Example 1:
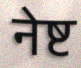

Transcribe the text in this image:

नेष्ट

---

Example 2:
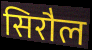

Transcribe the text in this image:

सिरौल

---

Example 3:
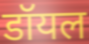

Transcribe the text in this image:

डॉयल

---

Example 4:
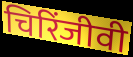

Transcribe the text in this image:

चिरिंजीवी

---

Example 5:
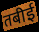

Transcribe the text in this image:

तबीई